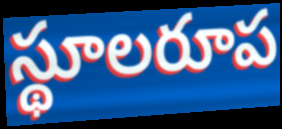
స్థూలరూప